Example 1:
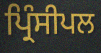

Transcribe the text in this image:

ਪ੍ਰਿੰਸੀਪਲ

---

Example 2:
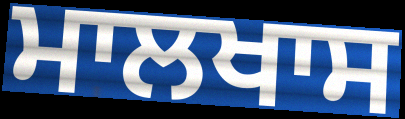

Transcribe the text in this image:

ਮਾਲਖਾਸ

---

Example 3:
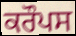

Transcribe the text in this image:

ਕਰੌਪਸ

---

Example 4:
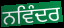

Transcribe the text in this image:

ਨਵਿੰਦਰ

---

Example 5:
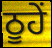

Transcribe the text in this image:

ਠੂਹੇਂ